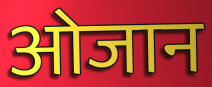
ओजान